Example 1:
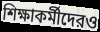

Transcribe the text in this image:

শিক্ষাকর্মীদেরও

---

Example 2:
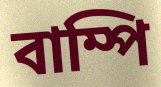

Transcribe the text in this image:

বাম্পি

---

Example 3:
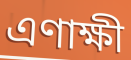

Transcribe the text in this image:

এণাক্ষী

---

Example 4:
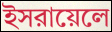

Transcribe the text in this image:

ইসরায়েলে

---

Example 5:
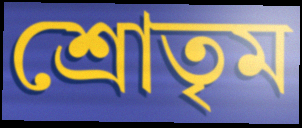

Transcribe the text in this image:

শ্রোতৃম